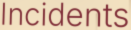
Incidents